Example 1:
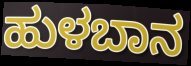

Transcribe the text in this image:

ಹುಳಬಾನ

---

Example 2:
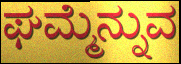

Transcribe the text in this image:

ಘಮ್ಮೆನ್ನುವ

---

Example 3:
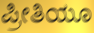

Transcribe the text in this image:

ಪ್ರೀತಿಯೂ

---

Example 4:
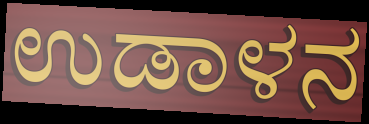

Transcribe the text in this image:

ಉಡಾಳನ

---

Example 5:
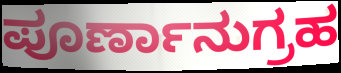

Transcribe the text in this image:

ಪೂರ್ಣಾನುಗ್ರಹ